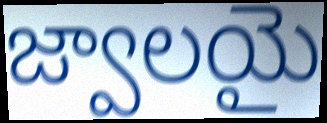
జ్వాలయై